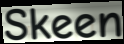
Skeen